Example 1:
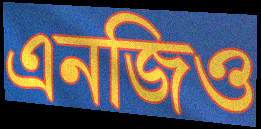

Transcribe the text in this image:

এনজিও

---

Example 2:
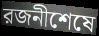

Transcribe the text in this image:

রজনীশেষে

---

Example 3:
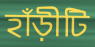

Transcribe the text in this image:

হাঁড়ীটি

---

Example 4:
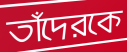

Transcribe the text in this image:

তাঁদেরকে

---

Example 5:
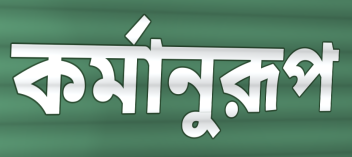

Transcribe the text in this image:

কর্মানুরূপ